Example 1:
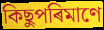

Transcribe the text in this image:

কিছুপৰিমাণে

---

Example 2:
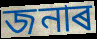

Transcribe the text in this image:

জনাৰ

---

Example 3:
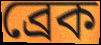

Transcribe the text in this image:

ব্ৰেক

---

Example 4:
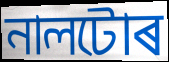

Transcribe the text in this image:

নালটোৰ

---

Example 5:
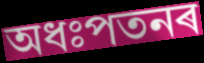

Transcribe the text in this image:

অধঃপতনৰ